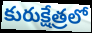
కురుక్షేత్రలో